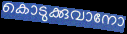
കൊടുക്കുവാനോ